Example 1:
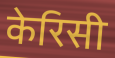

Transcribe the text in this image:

केरिसी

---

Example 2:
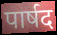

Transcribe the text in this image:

पार्षद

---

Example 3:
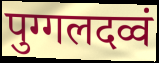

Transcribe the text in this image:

पुग्गलदव्वं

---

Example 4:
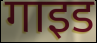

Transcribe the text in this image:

गाइड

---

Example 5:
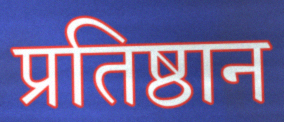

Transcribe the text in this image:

प्रतिष्ठान